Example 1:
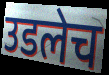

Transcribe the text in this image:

उडलेच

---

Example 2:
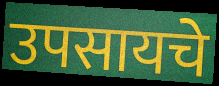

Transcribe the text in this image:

उपसायचे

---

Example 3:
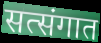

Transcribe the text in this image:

सत्संगात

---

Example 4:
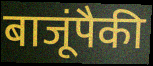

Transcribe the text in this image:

बाजूंपैकी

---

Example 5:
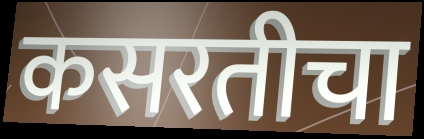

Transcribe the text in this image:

कसरतीचा